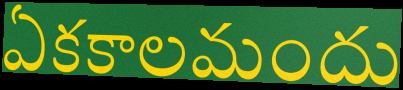
ఏకకాలమందు